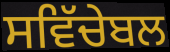
ਸਵਿੱਚੇਬਲ